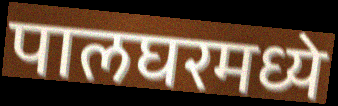
पालघरमध्ये